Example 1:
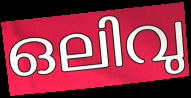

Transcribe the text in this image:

ഒലിവു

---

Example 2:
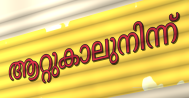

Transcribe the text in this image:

ആറ്റുകാലുനിന്ന്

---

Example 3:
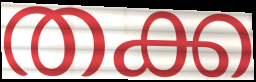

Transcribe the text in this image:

തക്ക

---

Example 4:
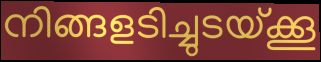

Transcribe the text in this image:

നിങ്ങളടിച്ചുടയ്ക്കൂ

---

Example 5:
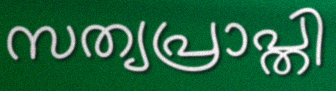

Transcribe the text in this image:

സത്യപ്രാപ്തി